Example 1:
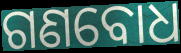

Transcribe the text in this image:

ଗଣବୋଧ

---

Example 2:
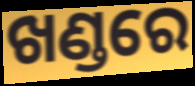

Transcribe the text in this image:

ଖଣ୍ଡରେ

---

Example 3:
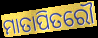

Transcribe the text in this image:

ମାତାପିତରୌ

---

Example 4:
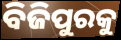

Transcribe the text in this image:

ବିଜିପୁରକୁ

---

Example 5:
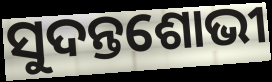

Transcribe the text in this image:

ସୁଦନ୍ତଶୋଭୀ